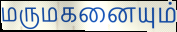
மருமகனையும்